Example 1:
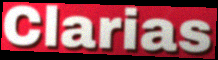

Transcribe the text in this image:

Clarias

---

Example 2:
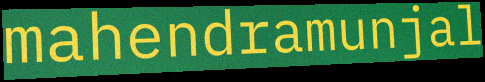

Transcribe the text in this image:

mahendramunjal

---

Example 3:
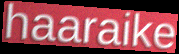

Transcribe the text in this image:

haaraike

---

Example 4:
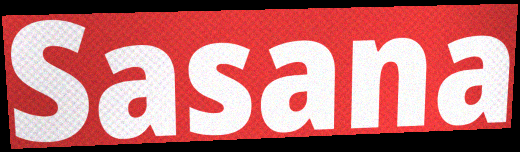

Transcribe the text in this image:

Sasana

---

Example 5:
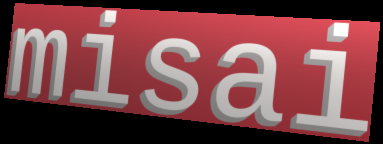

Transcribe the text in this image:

misai